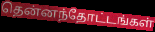
தென்னந்தோட்டங்கள்